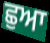
ਛੁਆ